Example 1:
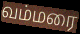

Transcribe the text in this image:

வம்மரை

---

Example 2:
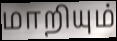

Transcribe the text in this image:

மாறியும்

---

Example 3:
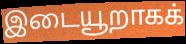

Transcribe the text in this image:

இடையூறாகக்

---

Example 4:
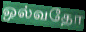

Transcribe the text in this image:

ஒல்வதோ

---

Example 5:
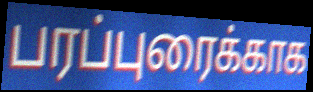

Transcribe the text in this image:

பரப்புரைக்காக